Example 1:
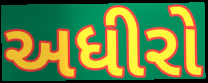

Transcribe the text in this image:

અધીરો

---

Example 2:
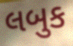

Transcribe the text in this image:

લબુક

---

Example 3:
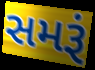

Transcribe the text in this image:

સમરૂં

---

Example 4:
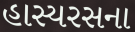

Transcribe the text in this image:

હાસ્યરસના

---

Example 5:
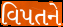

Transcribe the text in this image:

વિપતને